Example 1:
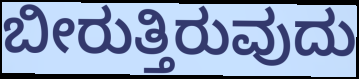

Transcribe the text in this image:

ಬೀರುತ್ತಿರುವುದು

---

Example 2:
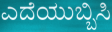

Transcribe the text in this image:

ಎದೆಯುಬ್ಬಿಸಿ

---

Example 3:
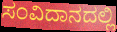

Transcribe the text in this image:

ಸಂವಿದಾನದಲ್ಲಿ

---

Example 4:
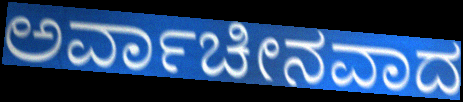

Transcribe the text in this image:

ಅರ್ವಾಚೀನವಾದ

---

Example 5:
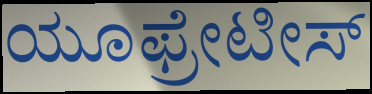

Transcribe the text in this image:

ಯೂಫ್ರೇಟೀಸ್